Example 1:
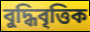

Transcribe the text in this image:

বুদ্ধিবৃত্তিক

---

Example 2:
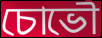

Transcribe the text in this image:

চোভৌ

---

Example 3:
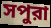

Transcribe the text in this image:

সপুরা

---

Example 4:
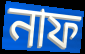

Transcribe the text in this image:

নাফ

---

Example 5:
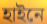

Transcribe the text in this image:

হাইনে